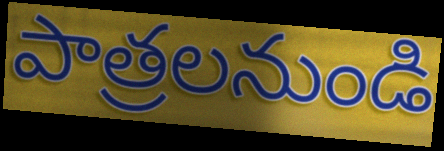
పాత్రలనుండి